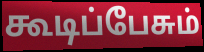
கூடிப்பேசும்